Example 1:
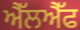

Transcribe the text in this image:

ਐੱਲਐੱਫ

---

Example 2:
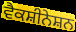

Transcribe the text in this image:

ਵੈਕਸ਼ੀਨੇਸ਼ਨ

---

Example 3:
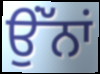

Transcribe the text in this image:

ਉਂੱਨਾਂ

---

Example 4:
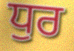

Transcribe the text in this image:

ਧੁਰ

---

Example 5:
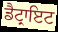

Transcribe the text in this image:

ਡੈਟ੍ਰਾਇਟ